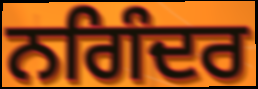
ਨਗਿੰਦਰ